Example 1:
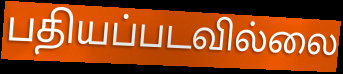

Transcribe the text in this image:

பதியப்படவில்லை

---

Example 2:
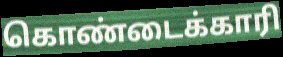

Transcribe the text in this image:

கொண்டைக்காரி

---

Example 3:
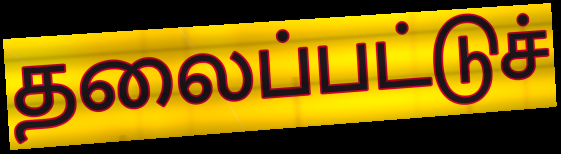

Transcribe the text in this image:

தலைப்பட்டுச்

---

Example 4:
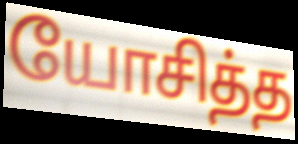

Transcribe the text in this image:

யோசித்த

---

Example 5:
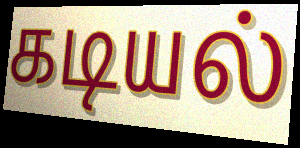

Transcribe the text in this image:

கடியல்